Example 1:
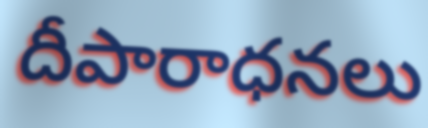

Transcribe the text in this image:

దీపారాధనలు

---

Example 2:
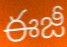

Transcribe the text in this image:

ఈజీ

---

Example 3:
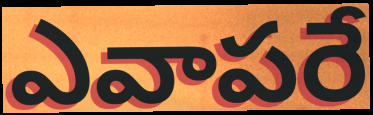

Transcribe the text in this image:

ఎవాపరే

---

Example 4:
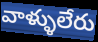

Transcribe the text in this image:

వాళ్ళులేరు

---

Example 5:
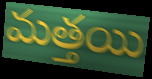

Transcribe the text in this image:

మత్తయి